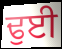
ਢੁਈ